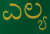
ಎಲ್ಯ